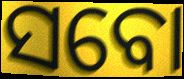
ସବୋ